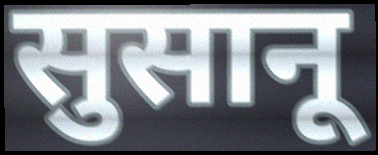
सुसानू